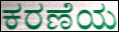
ಕರಣೆಯ